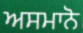
ਅਸਮਾਨੋ